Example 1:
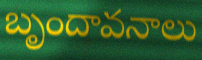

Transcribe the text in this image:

బృందావనాలు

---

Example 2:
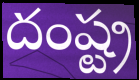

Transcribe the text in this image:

దంష్ట్ర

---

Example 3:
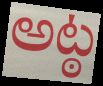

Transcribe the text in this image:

అట్ఠ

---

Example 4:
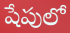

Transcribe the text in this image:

షేపులో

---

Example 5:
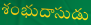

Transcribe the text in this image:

శంభుదాసుడు